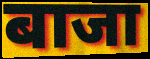
बाजा